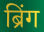
ब्रिंग